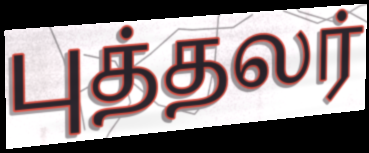
புத்தலர்